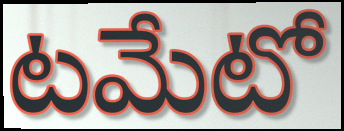
టమేటో